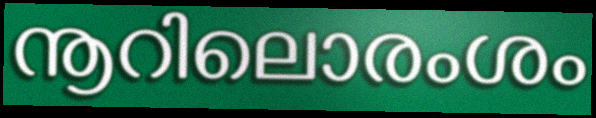
നൂറിലൊരംശം